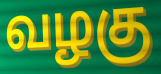
வழகு